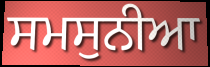
ਸਮਸੁਨੀਆ